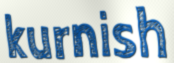
kurnish